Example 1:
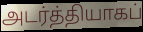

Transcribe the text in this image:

அடர்த்தியாகப்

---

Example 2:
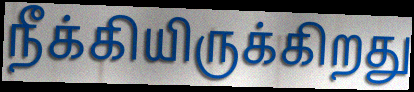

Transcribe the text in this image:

நீக்கியிருக்கிறது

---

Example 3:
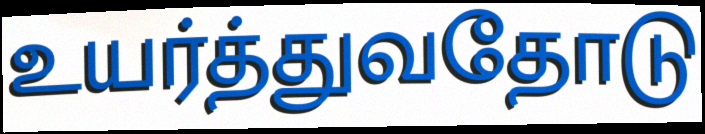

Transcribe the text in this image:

உயர்த்துவதோடு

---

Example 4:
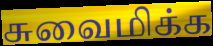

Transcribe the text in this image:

சுவைமிக்க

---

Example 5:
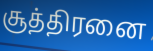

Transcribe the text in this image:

சூத்திரனை